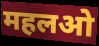
महलओ